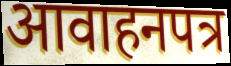
आवाहनपत्र